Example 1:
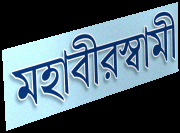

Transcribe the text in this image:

মহাবীরস্বামী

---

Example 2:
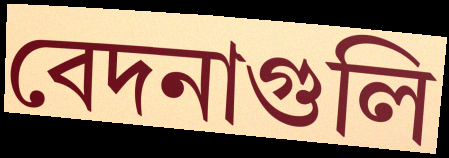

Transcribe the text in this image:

বেদনাগুলি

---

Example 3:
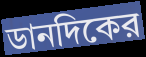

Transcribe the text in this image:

ডানদিকের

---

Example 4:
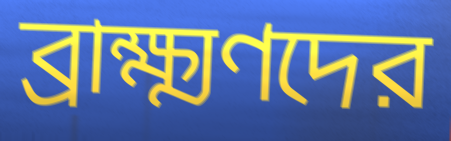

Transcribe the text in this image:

ব্রাক্ষ্মণদের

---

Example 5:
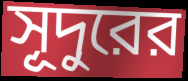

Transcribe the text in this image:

সূদুরের